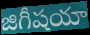
జిగీషయా